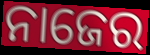
ନାଜେର